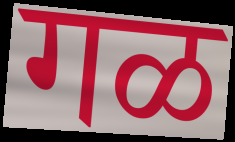
गळ